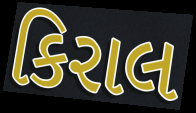
કિરાલ